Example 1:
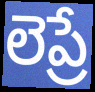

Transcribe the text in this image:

లెప్రే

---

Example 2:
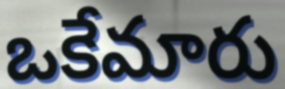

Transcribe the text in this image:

ఒకేమారు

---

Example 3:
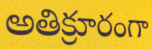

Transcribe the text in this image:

అతిక్రూరంగా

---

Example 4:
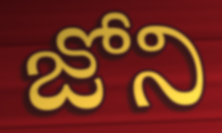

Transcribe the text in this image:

జోని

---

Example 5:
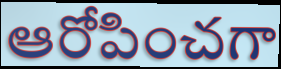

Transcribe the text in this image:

ఆరోపించగా